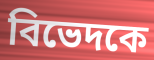
বিভেদকে